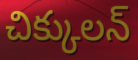
చిక్కులన్